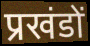
प्रखंडों